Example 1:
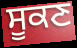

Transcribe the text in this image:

ਸੂਕਣ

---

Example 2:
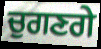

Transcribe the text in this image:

ਚੁਗਣਗੇ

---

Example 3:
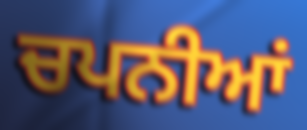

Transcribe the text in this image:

ਚਪਨੀਆਂ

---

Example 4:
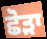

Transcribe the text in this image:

ਛੋੜਾ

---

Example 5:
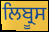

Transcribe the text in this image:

ਲਿਬ੍ਰੂਸ